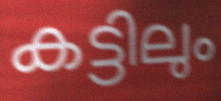
കട്ടിലും